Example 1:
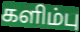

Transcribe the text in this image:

களிம்பு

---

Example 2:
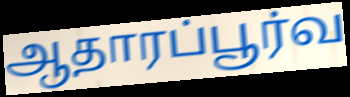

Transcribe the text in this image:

ஆதாரப்பூர்வ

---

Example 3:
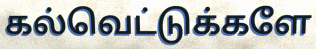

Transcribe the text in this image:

கல்வெட்டுக்களே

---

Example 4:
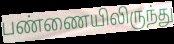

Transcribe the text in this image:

பண்ணையிலிருந்து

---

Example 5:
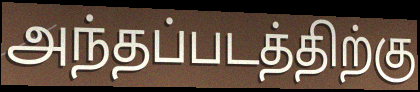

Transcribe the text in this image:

அந்தப்படத்திற்கு